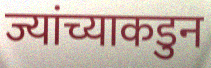
ज्यांच्याकडुन